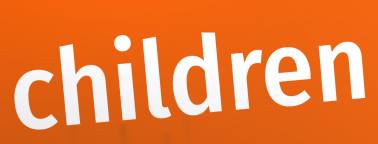
children